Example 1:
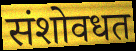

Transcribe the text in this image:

संशोवधत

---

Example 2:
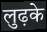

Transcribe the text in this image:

लुढ़के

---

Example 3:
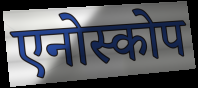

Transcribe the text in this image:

एनोस्कोप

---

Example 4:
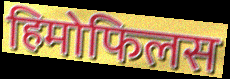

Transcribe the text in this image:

हिमोफिलस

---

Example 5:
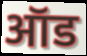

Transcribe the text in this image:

ऑड